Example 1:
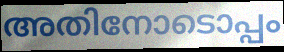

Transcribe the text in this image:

അതിനോടൊപ്പം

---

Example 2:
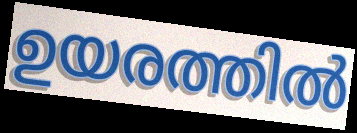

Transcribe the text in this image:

ഉയരത്തിൽ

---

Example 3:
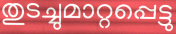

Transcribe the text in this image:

തുടച്ചുമാറ്റപ്പെട്ടു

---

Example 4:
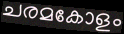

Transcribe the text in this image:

ചരമകോളം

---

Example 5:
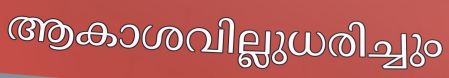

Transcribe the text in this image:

ആകാശവില്ലുധരിച്ചും